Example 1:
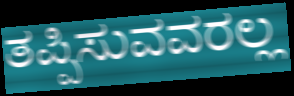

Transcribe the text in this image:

ತಪ್ಪಿಸುವವರಲ್ಲ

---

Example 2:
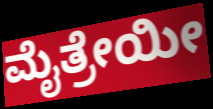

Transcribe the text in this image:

ಮೈತ್ರೇಯೀ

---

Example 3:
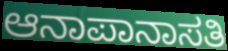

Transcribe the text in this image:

ಆನಾಪಾನಾಸತಿ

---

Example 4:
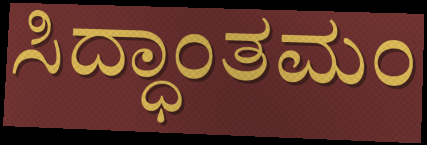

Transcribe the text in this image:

ಸಿದ್ಧಾಂತಮಂ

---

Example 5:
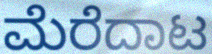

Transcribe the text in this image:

ಮೆರೆದಾಟ